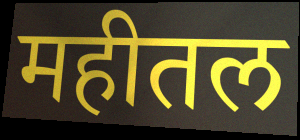
महीतल